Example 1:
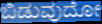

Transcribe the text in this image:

ಬಿಡುವುದೋ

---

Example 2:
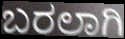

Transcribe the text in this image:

ಬರಲಾಗಿ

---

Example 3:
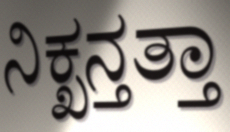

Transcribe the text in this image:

ನಿಕ್ಖನ್ತತ್ತಾ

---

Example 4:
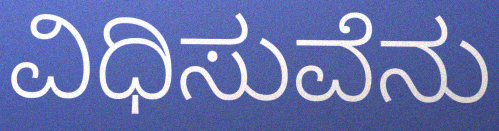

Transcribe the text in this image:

ವಿಧಿಸುವೆನು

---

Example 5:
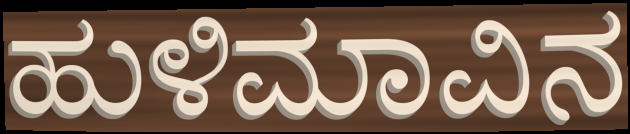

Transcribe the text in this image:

ಹುಳಿಮಾವಿನ